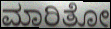
ಮಾರಿತೋ